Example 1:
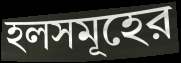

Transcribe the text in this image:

হলসমূহের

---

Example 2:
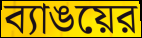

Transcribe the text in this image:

ব্যাঙয়ের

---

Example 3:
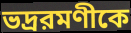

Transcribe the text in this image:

ভদ্ররমণীকে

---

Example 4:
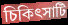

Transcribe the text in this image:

চিকিৎসাটি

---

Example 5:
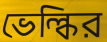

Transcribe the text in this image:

ভেল্কির